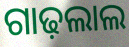
ଗାଢ଼ଲାଲ